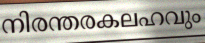
നിരന്തരകലഹവും